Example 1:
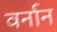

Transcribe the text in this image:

वर्नान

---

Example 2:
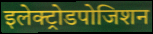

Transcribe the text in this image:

इलेक्ट्रोडपोजिशन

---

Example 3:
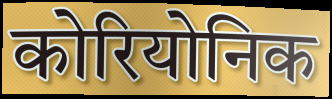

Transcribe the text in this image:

कोरियोनिक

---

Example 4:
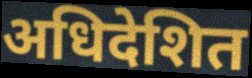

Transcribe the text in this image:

अधिदेशित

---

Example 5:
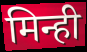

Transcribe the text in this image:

मिन्ही